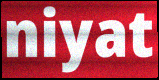
niyat